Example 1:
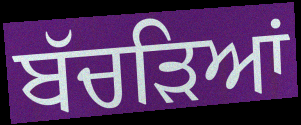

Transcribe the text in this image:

ਬੱਚੜਿਆਂ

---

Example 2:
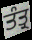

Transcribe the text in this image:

ਤੰਤ੍ਰ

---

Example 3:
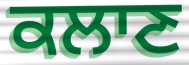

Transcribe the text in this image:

ਕਲਾਣ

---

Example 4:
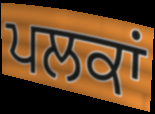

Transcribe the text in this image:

ਪਲਕਾਂ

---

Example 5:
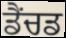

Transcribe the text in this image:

ਡੈਂਚਡ